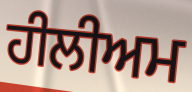
ਹੀਲੀਅਮ